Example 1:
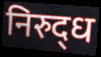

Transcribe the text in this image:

निरुद्ध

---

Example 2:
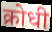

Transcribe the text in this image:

क्रोधी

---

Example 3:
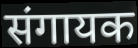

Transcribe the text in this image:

संगायक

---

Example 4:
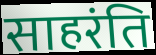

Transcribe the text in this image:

साहरंति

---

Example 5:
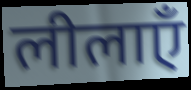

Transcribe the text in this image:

लीलाएँ